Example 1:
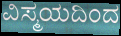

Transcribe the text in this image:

ವಿಸ್ಮಯದಿಂದ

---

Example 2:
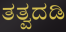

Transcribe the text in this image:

ತತ್ವದಡಿ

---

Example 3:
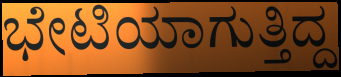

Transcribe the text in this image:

ಭೇಟಿಯಾಗುತ್ತಿದ್ದ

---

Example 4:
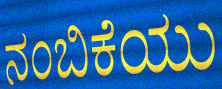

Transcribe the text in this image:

ನಂಬಿಕೆಯು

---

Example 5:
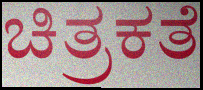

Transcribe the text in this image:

ಚಿತ್ರಕತೆ